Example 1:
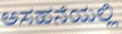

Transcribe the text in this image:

ಅಸಹನೆಯಲ್ಲಿ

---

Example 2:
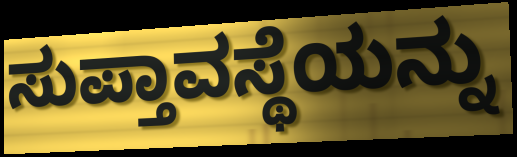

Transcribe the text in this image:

ಸುಪ್ತಾವಸ್ಥೆಯನ್ನು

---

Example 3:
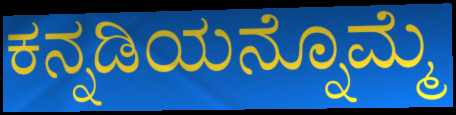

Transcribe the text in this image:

ಕನ್ನಡಿಯನ್ನೊಮ್ಮೆ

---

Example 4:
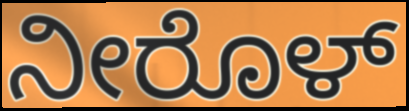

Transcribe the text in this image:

ನೀರೊಳ್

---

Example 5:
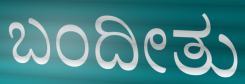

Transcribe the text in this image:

ಬಂದೀತು